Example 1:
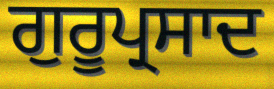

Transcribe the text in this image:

ਗੁਰੂਪ੍ਰਸਾਦ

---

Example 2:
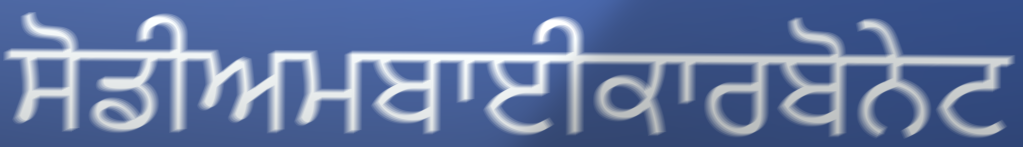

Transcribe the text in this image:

ਸੋਡੀਅਮਬਾਈਕਾਰਬੋਨੇਟ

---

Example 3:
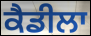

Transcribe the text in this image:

ਕੈਡੀਲਾ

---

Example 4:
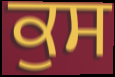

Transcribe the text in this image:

ਕੁਸ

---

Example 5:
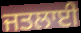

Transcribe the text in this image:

ਜਤਲਾਈ